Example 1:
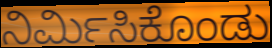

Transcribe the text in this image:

ನಿರ್ಮಿಸಿಕೊಂಡು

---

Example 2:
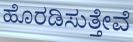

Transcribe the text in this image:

ಹೊರಡಿಸುತ್ತೇವೆ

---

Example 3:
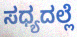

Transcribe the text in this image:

ಸಧ್ಯದಲ್ಲೆ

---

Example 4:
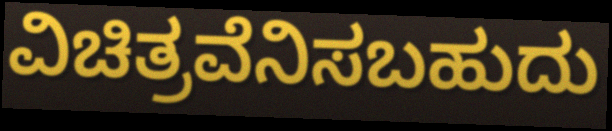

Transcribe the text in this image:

ವಿಚಿತ್ರವೆನಿಸಬಹುದು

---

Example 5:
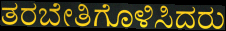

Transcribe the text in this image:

ತರಬೇತಿಗೊಳಿಸಿದರು